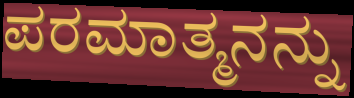
ಪರಮಾತ್ಮನನ್ನು